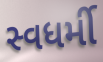
સ્વધર્મી